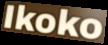
Ikoko